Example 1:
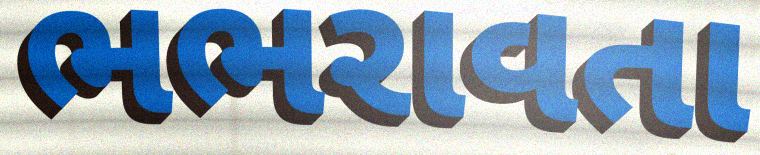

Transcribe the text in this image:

ભભરાવતા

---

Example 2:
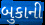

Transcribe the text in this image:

બુકાની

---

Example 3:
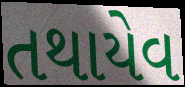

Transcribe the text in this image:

તથાયેવ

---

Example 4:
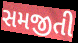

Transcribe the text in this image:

સમજીતી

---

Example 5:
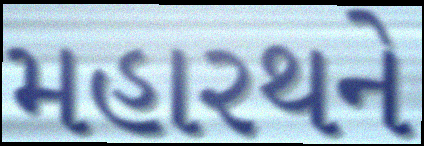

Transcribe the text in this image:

મહારથને